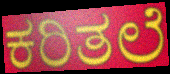
ಕರಿತಲೆ